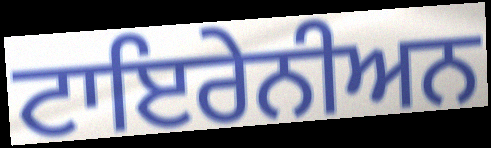
ਟਾਇਰੇਨੀਅਨ